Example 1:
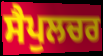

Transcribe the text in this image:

ਸੈਪੁਲਚਰ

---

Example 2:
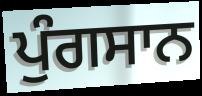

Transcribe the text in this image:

ਪੁੰਗਸਾਨ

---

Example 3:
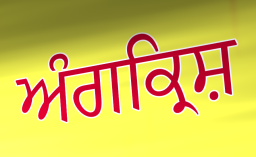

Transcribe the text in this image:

ਅੰਗਕ੍ਰਿਸ਼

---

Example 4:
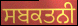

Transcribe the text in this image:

ਸਬਕਤਨੀ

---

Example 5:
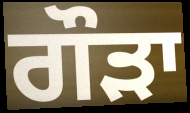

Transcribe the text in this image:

ਗੌੜਾ